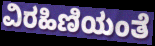
ವಿರಹಿಣಿಯಂತೆ